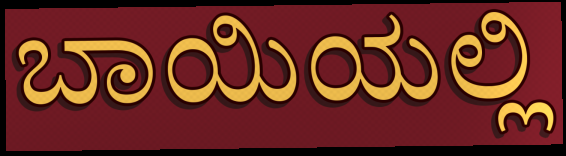
ಬಾಯಿಯಲ್ಲಿ